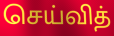
செய்வித்